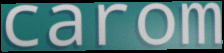
carom